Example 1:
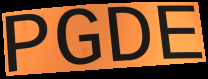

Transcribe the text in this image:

PGDE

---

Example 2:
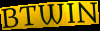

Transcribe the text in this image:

BTWIN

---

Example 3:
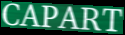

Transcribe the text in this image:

CAPART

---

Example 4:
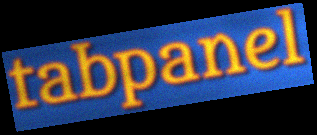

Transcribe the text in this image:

tabpanel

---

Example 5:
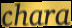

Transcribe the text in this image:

chara